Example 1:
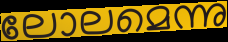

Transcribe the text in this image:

ലോലമെന്നു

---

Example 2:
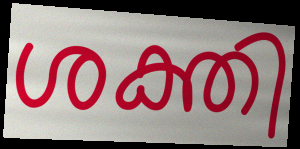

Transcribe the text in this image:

ശക്തി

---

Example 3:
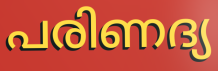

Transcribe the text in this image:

പരിണദ്യ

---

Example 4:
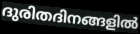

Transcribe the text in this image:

ദുരിതദിനങ്ങളിൽ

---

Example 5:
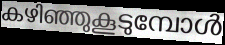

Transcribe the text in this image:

കഴിഞ്ഞുകൂടുമ്പോൾ